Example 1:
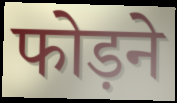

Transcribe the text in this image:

फोड़ने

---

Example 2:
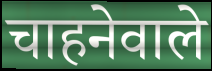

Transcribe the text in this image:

चाहनेवाले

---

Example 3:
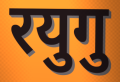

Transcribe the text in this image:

रयुगु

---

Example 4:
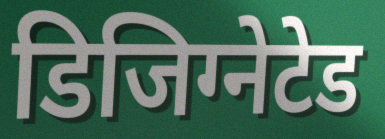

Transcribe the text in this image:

डिजिग्नेटेड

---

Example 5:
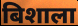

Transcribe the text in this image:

बिशाला